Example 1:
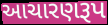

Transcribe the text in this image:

આચારણરૂપ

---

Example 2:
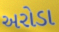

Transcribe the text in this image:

અરોડા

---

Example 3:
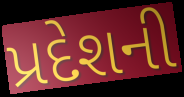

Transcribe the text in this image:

પ્રદેશની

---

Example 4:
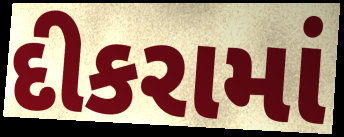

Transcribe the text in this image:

દીકરામાં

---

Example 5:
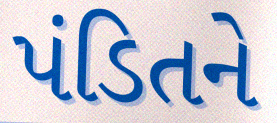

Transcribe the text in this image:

પંડિતને